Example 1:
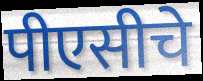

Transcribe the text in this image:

पीएसीचे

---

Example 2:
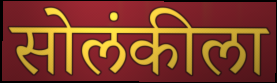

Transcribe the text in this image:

सोलंकीला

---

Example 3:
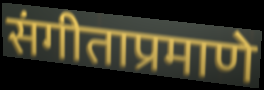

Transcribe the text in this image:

संगीताप्रमाणे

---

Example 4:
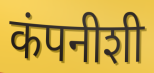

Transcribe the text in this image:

कंपनीशी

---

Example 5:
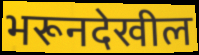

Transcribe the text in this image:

भरूनदेखील